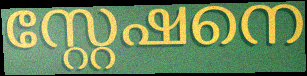
സ്റ്റേഷനെ